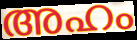
അഹം